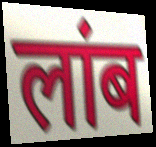
लांब